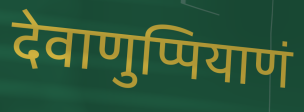
देवाणुप्पियाणं